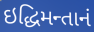
ઇદ્ધિમન્તાનં